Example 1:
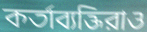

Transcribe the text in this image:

কর্তাব্যক্তিরাও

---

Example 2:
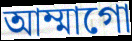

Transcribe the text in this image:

আম্মাগো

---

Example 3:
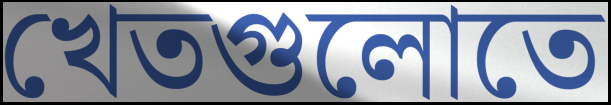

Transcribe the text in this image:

খেতগুলোতে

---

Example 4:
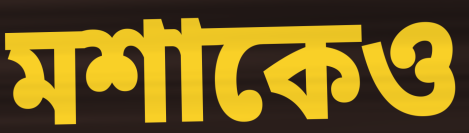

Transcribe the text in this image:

মশাকেও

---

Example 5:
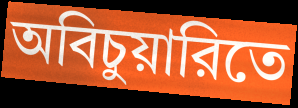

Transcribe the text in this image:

অবিচুয়ারিতে